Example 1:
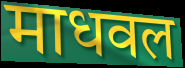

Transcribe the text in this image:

माधवल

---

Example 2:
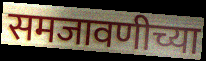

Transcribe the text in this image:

समजावणीच्या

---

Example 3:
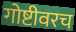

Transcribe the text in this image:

गोष्टीवरच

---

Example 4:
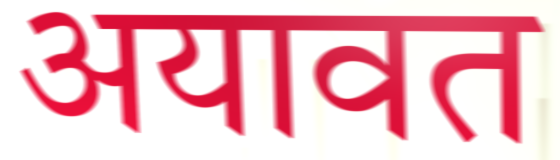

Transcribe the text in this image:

अयावत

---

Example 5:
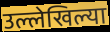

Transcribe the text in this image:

उल्लेखिल्या